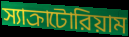
স্যাক্রাটোরিয়াম